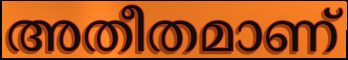
അതീതമാണ്